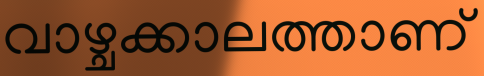
വാഴ്ചക്കാലത്താണ്